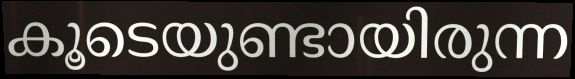
കൂടെയുണ്ടായിരുന്ന